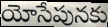
యోసేపునకు